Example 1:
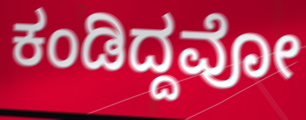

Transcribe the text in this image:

ಕಂಡಿದ್ದವೋ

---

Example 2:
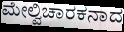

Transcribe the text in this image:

ಮೇಲ್ವಿಚಾರಕನಾದ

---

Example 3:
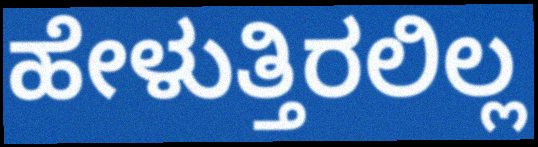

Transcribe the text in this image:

ಹೇಳುತ್ತಿರಲಿಲ್ಲ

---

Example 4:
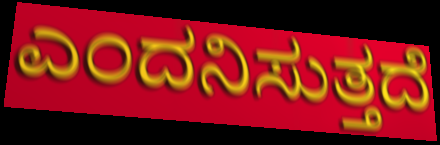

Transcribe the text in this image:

ಎಂದನಿಸುತ್ತದೆ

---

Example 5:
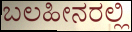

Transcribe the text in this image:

ಬಲಹೀನರಲ್ಲಿ